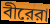
বীরেরা